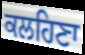
ਕਲਹਿਣਾ